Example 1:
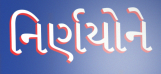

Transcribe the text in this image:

નિર્ણયોને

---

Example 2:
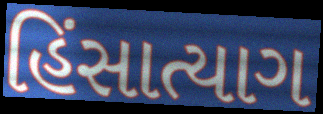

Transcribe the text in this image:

હિંસાત્યાગ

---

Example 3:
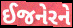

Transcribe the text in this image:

ઈજનેરને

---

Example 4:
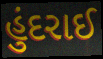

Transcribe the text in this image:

હુંદરાઈ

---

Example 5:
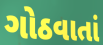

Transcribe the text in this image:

ગોઠવાતાં